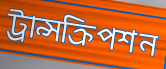
ট্রান্সক্রিপশন